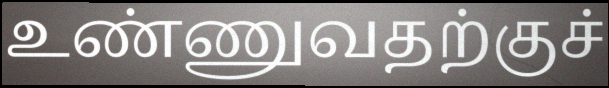
உண்ணுவதற்குச்